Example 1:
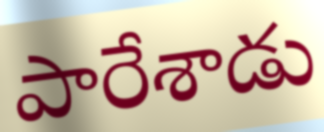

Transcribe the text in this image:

పారేశాడు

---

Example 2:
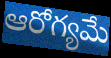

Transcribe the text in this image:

ఆరోగ్యమే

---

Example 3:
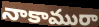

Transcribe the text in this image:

నాకామురా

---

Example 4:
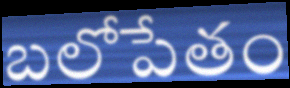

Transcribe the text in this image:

బలోపేతం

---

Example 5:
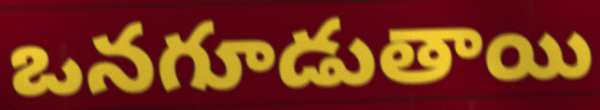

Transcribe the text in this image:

ఒనగూడుతాయి